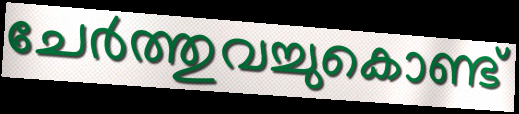
ചേർത്തുവച്ചുകൊണ്ട്